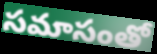
సమాసంతో